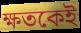
ক্ষতকেই